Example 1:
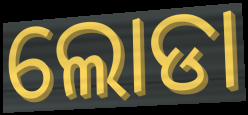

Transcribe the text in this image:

ଲୋଡା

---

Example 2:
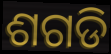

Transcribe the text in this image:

ଶଗଡି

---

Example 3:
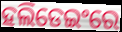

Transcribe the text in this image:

ହଲିଡେଇଂରେ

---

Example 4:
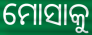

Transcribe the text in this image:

ମୋସାକୁ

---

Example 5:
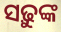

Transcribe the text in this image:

ସଢ଼ୁଙ୍କ